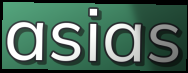
asias